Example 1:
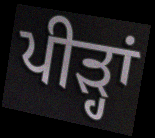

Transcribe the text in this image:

ਪੀੜ੍ਹਾਂ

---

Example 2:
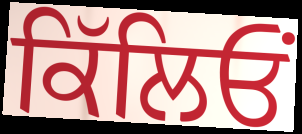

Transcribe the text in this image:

ਕਿੱਲਿਓਂ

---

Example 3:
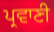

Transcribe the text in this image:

ਪ੍ਰਵਾਣੀ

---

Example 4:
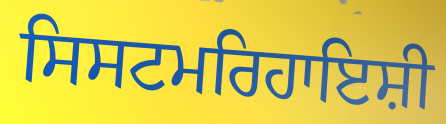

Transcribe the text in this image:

ਸਿਸਟਮਰਿਹਾਇਸ਼ੀ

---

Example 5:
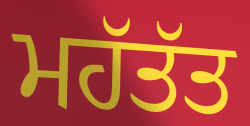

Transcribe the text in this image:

ਮਹੱਤੱਤ